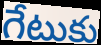
గేటుకు